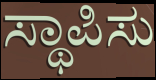
ಸ್ಥಾಪಿಸು